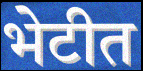
भेटीत